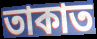
তাকাত